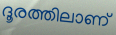
ദൂരത്തിലാണ്